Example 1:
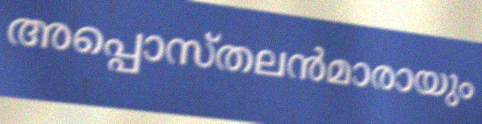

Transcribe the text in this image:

അപ്പൊസ്തലൻമാരായും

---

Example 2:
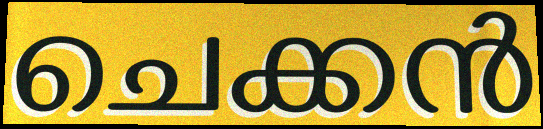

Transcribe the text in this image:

ചെക്കൻ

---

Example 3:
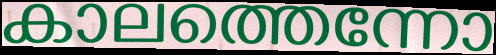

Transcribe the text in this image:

കാലത്തെന്നോ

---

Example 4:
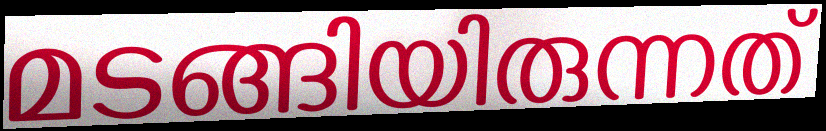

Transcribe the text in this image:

മടങ്ങിയിരുന്നത്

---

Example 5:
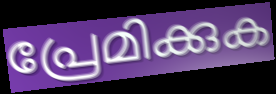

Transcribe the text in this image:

പ്രേമിക്കുക